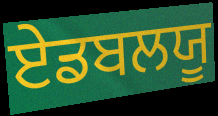
ਏਡਬਲਯੂ